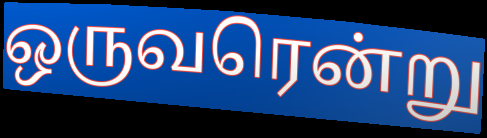
ஒருவரென்று